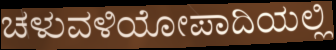
ಚಳುವಳಿಯೋಪಾದಿಯಲ್ಲಿ